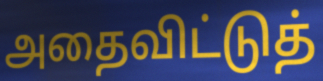
அதைவிட்டுத்